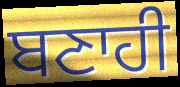
ਬਣਾਹੀ